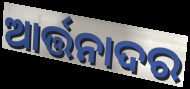
ଆର୍ତ୍ତନାଦର